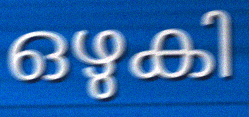
ഒഴുകി